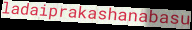
ladaiprakashanabasu